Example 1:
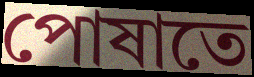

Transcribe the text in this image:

পোষাতে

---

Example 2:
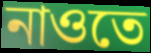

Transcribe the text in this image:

নাওতে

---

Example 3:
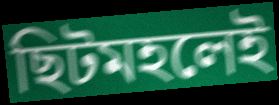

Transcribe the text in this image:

ছিটমহলেই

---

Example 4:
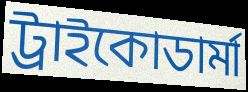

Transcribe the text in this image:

ট্রাইকোডার্মা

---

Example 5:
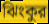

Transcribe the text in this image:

ঝিংকুর